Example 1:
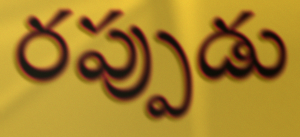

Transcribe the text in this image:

రప్పుడు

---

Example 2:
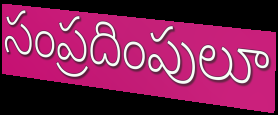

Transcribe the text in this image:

సంప్రదింపులూ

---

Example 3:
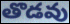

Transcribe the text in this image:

తొడవు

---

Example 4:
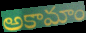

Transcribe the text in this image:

అకామాం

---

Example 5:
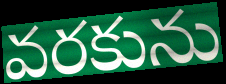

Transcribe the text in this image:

వరకును